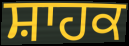
ਸ਼ਾਹਕ